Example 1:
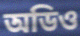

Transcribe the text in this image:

অডিও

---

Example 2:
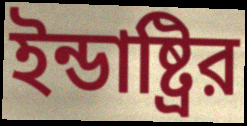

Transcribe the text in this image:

ইন্ডাষ্ট্রির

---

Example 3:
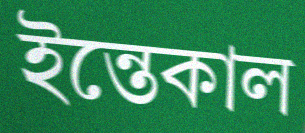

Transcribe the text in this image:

ইন্তেকাল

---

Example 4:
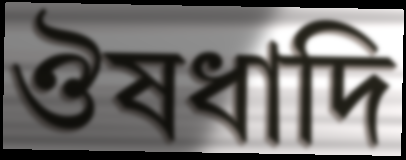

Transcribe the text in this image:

ঔষধাদি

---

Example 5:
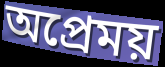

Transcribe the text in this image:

অপ্রেময়